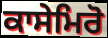
ਕਾਸੇਮਿਰੋ